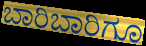
ಬಾರಿಬಾರಿಗೂ